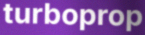
turboprop